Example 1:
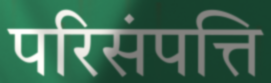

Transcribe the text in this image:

परिसंपत्ति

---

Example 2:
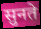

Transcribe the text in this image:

सुनते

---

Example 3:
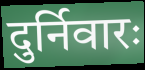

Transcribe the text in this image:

दुर्निवारः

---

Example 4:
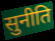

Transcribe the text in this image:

सुनीति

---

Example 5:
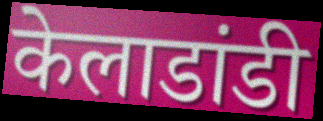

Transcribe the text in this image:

केलाडांडी